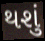
થશું